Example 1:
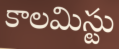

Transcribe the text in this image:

కాలమిస్టు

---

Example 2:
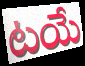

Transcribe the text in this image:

టయే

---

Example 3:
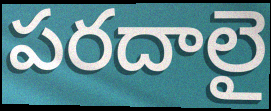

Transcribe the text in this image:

పరదాలై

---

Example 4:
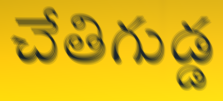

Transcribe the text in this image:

చేతిగుడ్డ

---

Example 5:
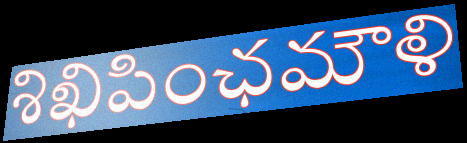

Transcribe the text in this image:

శిఖిపింఛమౌళి